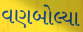
વણબોલ્યા